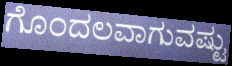
ಗೊಂದಲವಾಗುವಷ್ಟು